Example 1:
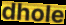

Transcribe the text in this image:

dhole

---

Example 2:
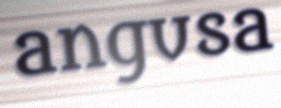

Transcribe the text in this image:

angusa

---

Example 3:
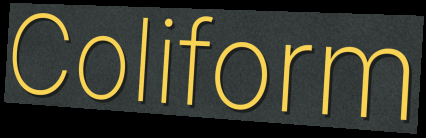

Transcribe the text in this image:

Coliform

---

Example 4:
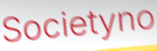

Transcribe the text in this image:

Societyno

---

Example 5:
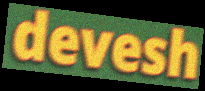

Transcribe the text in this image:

devesh